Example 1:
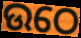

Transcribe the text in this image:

ଉଠେ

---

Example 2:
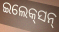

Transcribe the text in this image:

ଇଲେକ୍‌ସନ୍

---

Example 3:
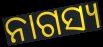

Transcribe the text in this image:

ନାଗସ୍ୟ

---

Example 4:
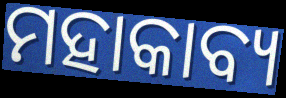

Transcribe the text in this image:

ମହାକାବ୍ୟ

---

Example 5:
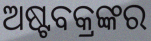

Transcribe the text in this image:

ଅଷ୍ଟବକ୍ରଙ୍କର